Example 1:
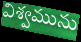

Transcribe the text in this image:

విశ్వమును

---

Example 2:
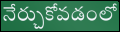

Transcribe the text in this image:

నేర్చుకోవడంలో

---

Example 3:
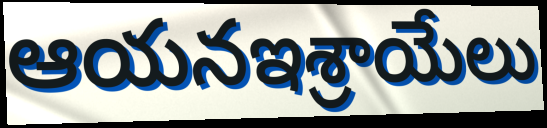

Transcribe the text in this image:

ఆయనఇశ్రాయేలు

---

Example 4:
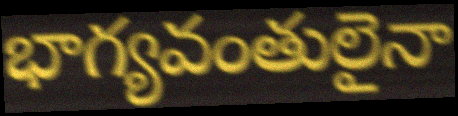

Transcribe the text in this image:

భాగ్యవంతులైనా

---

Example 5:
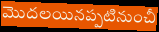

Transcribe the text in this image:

మొదలయినప్పటినుంచీ